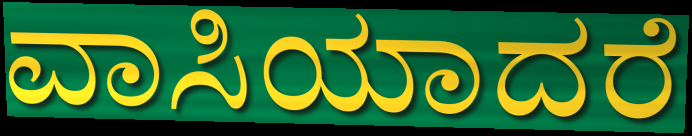
ವಾಸಿಯಾದರೆ